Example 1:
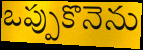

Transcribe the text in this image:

ఒప్పుకొనెను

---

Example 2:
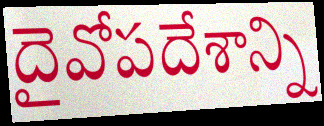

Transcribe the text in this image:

దైవోపదేశాన్ని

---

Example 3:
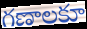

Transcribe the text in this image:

గణాలకూ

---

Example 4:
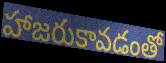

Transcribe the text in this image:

హాజరుకావడంతో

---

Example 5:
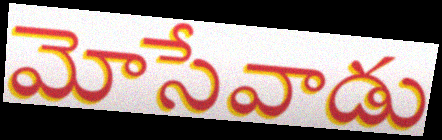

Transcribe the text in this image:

మోసేవాడు